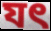
যৎ